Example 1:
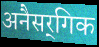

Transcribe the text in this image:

अनैसर्गिक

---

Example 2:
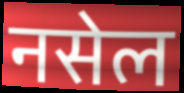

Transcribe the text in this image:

नसेल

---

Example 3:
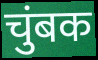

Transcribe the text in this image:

चुंबक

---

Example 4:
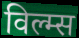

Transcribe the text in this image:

विल्म्स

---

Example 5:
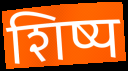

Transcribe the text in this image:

शिष्य